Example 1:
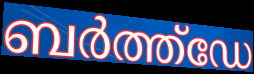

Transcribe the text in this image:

ബർത്ത്ഡേ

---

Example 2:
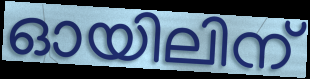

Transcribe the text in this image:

ഓയിലിന്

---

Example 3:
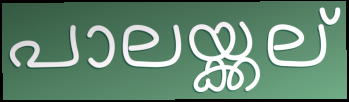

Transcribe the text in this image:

പാലയ്ക്കല്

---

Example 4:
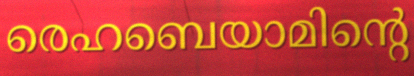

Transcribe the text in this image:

രെഹബെയാമിന്റെ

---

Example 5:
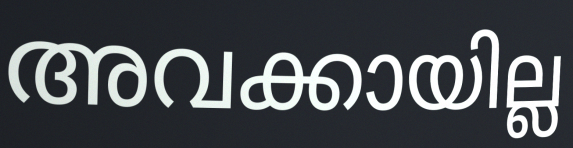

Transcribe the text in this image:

അവക്കായില്ല